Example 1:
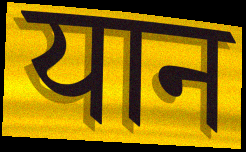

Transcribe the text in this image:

यान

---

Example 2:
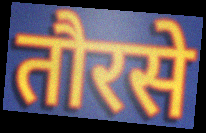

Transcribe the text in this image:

तौरसे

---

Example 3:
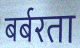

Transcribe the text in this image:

बर्बरता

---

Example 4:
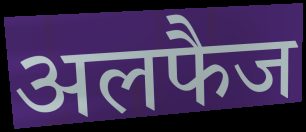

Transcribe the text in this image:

अलफैज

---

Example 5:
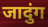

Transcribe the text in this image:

जादुंग